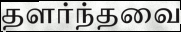
தளர்ந்தவை